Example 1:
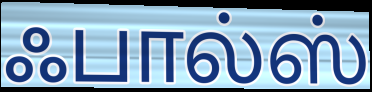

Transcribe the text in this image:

ஃபால்ஸ்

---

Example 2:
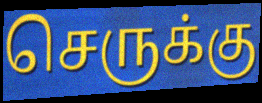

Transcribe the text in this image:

செருக்கு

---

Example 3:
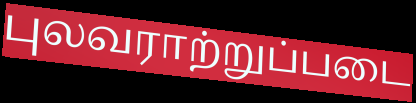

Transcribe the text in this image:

புலவராற்றுப்படை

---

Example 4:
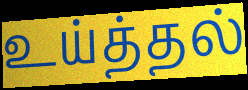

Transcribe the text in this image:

உய்த்தல்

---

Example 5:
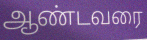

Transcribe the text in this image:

ஆண்டவரை